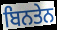
ਬਿਨਤੇਨ